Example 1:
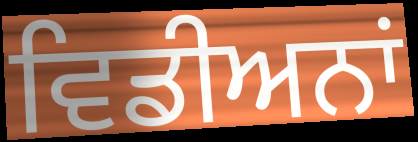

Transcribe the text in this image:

ਵਿਡੀਅਨਾਂ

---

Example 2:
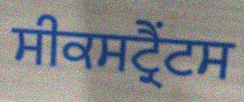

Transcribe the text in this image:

ਸੀਕਸਟ੍ਰੈਂਟਸ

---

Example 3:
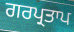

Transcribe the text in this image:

ਗਰਪ੍ਰਤਾਪ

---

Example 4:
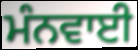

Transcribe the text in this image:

ਮੰਨਵਾਈ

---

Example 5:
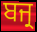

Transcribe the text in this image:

ਬਜ੍ਰ